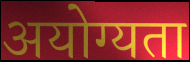
अयोग्यता